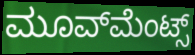
ಮೂವ್‌ಮೆಂಟ್ಸ್